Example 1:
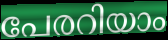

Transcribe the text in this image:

പേരറിയാം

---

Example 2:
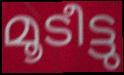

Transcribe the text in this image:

മൂടീട്ടു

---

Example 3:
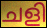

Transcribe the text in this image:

ചളി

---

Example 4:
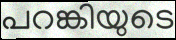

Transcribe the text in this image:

പറങ്കിയുടെ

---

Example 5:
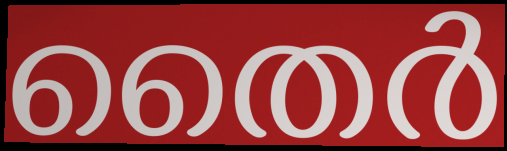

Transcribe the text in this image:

തൈർ